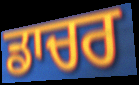
ਡਾਚਰ